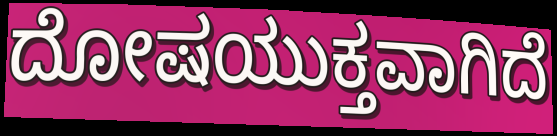
ದೋಷಯುಕ್ತವಾಗಿದೆ